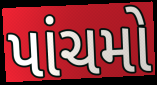
પાંચમો